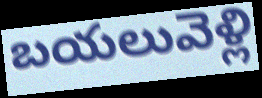
బయలువెళ్లి